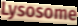
Lysosome